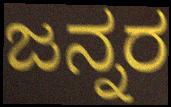
ಜನ್ನರ